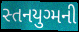
સ્તનયુગ્મની